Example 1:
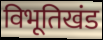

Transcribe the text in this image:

विभूतिखंड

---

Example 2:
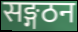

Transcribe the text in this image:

सङ्गठन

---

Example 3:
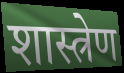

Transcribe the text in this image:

शास्त्रेण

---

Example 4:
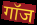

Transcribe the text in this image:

गॉज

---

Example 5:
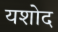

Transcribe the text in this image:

यशोद